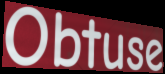
Obtuse